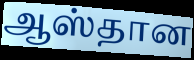
ஆஸ்தான